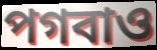
পগবাও